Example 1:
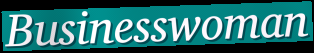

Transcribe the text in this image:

Businesswoman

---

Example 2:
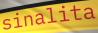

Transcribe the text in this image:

sinalita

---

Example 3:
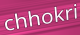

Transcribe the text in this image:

chhokri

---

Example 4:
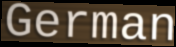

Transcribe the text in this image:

German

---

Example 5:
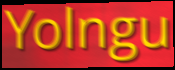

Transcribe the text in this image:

Yolngu